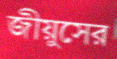
জীয়ুসের